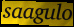
saagulo